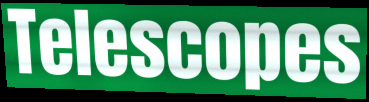
Telescopes